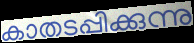
കാതടപ്പിക്കുന്നു